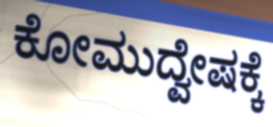
ಕೋಮುದ್ವೇಷಕ್ಕೆ